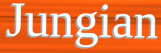
Jungian